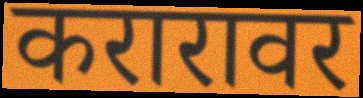
करारावर